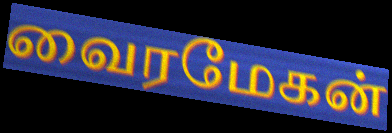
வைரமேகன்